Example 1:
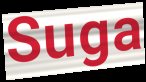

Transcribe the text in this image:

Suga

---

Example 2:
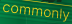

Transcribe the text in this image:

commonly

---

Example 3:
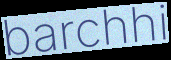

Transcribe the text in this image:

barchhi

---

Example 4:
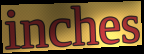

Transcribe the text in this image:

inches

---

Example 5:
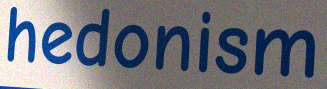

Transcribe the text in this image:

hedonism